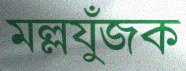
মল্লযুঁজক